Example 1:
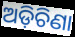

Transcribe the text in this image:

ଅଡ଼ିଚିଣା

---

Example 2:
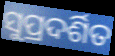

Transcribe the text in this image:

ସୁପ୍ରଦର୍ଶିତ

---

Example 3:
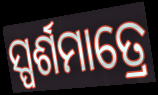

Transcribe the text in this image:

ସ୍ପର୍ଶମାତ୍ରେ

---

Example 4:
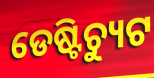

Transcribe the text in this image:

ଡେଷ୍ଟିଚ୍ୟୁଟ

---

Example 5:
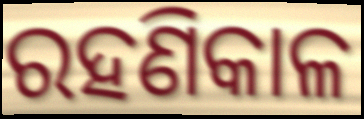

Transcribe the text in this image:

ରହଣିକାଳ